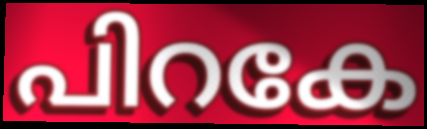
പിറകേ